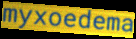
myxoedema